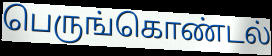
பெருங்கொண்டல்